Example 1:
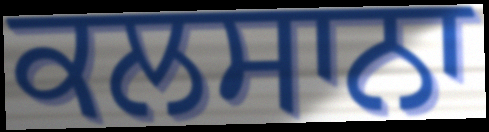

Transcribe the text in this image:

ਕਲਸਾਨਾ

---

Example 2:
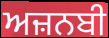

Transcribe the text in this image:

ਅਜ਼ਨਬੀ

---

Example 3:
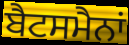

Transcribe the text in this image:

ਬੈਟਸਮੈਨਾਂ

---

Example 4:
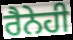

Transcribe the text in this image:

ਰੈਨੇਹੀ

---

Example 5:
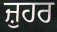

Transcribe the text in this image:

ਜ਼ੁਹਰ